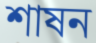
শাষন